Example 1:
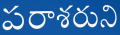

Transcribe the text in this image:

పరాశరుని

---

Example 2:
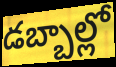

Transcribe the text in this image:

డబ్బాల్లో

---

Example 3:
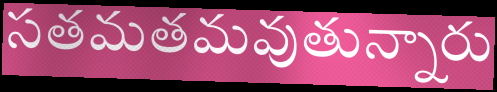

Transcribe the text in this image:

సతమతమవుతున్నారు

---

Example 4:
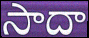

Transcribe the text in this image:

సాదా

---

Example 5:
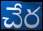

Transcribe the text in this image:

చేర